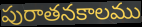
పురాతనకాలము